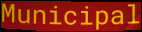
Municipal